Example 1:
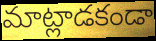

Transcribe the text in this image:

మాట్లాడకండా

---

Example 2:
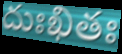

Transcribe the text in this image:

దుఃఖితః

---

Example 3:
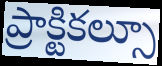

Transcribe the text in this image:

ప్రాక్టికల్సూ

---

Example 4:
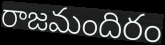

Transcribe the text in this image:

రాజమందిరం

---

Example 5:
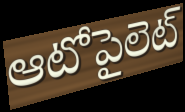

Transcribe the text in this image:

ఆటోపైలెట్